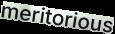
meritorious